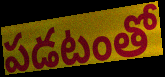
పడటంతో